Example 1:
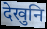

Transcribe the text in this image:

देखुनि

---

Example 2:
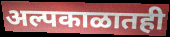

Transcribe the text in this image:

अल्पकाळातही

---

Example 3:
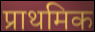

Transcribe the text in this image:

प्राथमिक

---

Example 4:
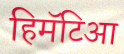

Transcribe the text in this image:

हिमॅटिआ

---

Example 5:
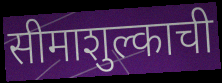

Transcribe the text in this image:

सीमाशुल्काची